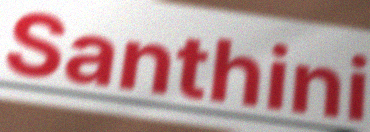
Santhini